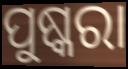
ପୁଷ୍କରା